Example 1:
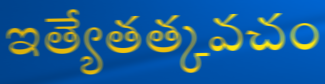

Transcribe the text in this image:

ఇత్యేతత్కవచం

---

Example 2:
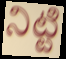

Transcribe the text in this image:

నిట్టి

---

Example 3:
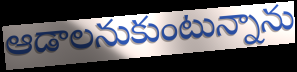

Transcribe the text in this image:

ఆడాలనుకుంటున్నాను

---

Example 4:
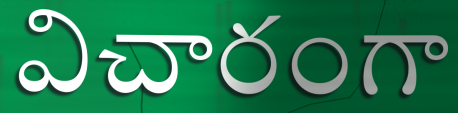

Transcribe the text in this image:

విచారంగా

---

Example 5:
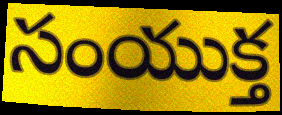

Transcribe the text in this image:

సంయుక్త